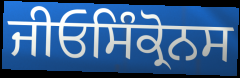
ਜੀਓਸਿੰਕ੍ਰੋਨਸ